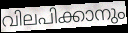
വിലപിക്കാനും